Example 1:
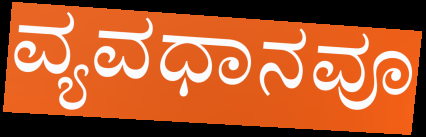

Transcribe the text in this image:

ವ್ಯವಧಾನವೂ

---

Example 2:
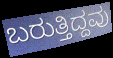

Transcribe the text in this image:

ಬರುತ್ತಿದ್ದವು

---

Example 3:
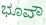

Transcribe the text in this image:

ಭೂವೌ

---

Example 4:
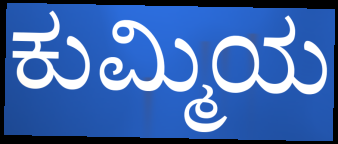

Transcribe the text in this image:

ಕುಮ್ಮಿಯ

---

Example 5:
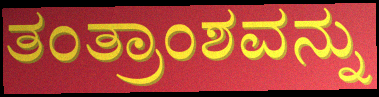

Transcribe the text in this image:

ತಂತ್ರಾಂಶವನ್ನು